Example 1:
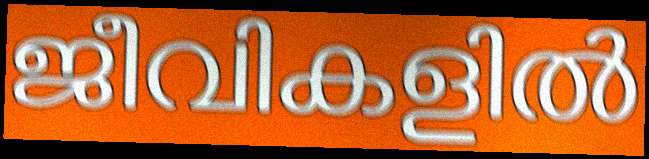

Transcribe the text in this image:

ജീവികളിൽ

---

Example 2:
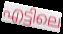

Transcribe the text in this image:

എട്ടിലെ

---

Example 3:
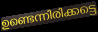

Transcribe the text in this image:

ഉണ്ടെന്നിരിക്കട്ടെ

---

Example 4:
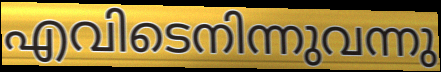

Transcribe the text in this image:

എവിടെനിന്നുവന്നു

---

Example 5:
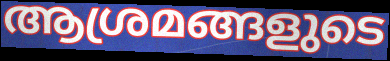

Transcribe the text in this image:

ആശ്രമങ്ങളുടെ